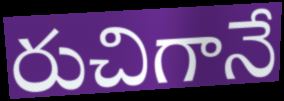
రుచిగానే